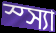
স্স্যা